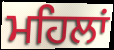
ਮਹਿਲਾਂ